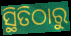
ସ୍ଥିତିଠାରୁ